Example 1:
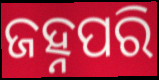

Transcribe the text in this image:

ଜହ୍ନପରି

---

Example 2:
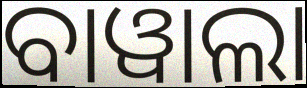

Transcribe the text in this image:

ବାୱାଲା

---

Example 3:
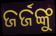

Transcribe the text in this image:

ଜର୍ଜଙ୍କୁ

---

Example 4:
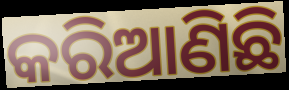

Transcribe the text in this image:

କରିଆଣିଛି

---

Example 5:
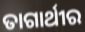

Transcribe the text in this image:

ତାଗାର୍ଥୀର